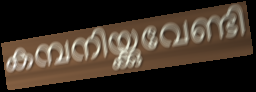
കമ്പനിയ്ക്കുവേണ്ടി